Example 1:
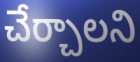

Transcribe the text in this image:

చేర్చాలని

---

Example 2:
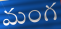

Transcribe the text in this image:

మంగ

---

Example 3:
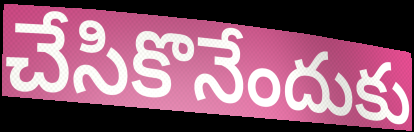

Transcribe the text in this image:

చేసికొనేందుకు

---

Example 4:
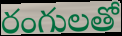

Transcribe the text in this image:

రంగులతో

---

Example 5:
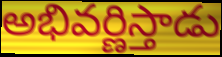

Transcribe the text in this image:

అభివర్ణిస్తాడు